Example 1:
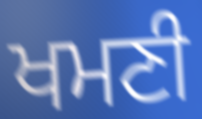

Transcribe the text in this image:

ਖਮਣੀ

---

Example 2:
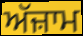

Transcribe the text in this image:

ਅੱਜ਼ਾਮ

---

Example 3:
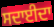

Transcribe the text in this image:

ਸਦਾਈਦਾ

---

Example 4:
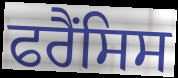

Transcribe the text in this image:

ਫਰੈਂਸਿਸ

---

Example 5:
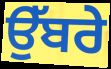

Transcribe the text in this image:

ਉੱਬਰੇ